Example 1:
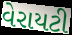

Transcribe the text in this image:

વેરાયટી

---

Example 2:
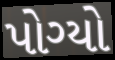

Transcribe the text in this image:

પોગ્યો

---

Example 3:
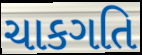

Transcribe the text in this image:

ચાકગતિ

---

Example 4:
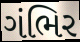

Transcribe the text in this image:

ગંભિર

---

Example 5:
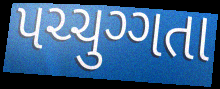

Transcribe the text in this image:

પચ્ચુગ્ગતા